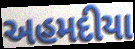
અહમદીયા